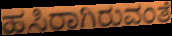
ಹಸಿರಾಗಿರುವಂತೆ